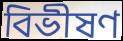
বিভীষণ